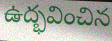
ఉద్భవించిన